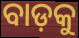
ବାଡ଼କୁ